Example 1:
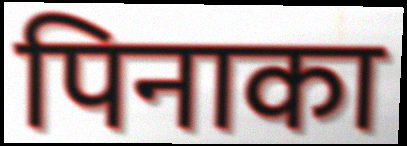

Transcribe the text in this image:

पिनाका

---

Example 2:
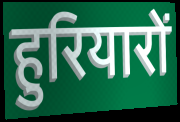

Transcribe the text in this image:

हुरियारों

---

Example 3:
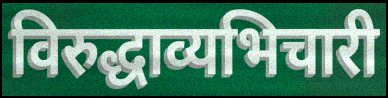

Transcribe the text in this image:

विरुद्धाव्यभिचारी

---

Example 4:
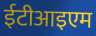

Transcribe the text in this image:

ईटीआइएम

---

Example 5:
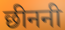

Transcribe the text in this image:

छीननी